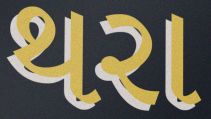
થરા